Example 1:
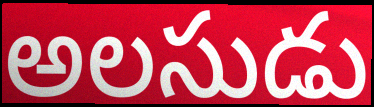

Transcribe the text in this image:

అలసుడు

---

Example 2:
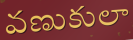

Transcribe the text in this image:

వణుకులా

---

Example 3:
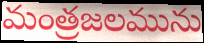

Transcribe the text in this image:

మంత్రజలమును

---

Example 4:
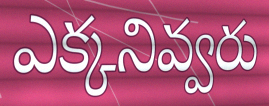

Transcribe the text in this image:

ఎక్కనివ్వరు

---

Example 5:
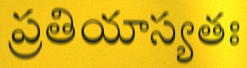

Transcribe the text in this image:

ప్రతియాస్యతః